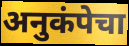
अनुकंपेचा